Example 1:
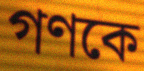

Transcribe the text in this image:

গণকে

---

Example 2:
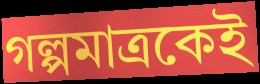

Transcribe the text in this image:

গল্পমাত্রকেই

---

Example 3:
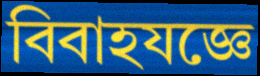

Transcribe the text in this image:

বিবাহযজ্ঞে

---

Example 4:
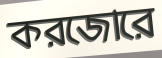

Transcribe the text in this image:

করজোরে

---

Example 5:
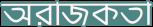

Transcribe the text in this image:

অরাজকতা